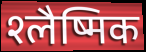
श्लैष्मिक